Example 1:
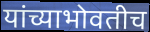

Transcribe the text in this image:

यांच्याभोवतीच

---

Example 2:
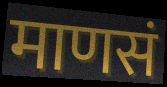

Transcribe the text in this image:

माणसं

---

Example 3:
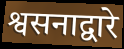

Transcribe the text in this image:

श्वसनाद्वारे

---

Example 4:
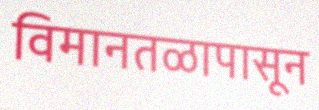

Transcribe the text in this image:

विमानतळापासून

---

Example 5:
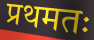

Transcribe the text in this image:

प्रथमतः